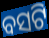
ବସଟି